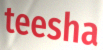
teesha